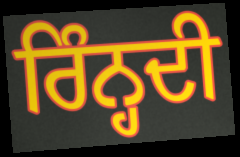
ਰਿੰਨ੍ਹਦੀ